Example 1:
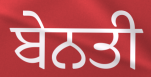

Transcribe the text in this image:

ਬੇਨਤੀ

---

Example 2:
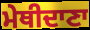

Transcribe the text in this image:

ਮੇਥੀਦਾਣਾ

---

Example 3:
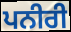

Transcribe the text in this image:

ਪਨੀਰੀ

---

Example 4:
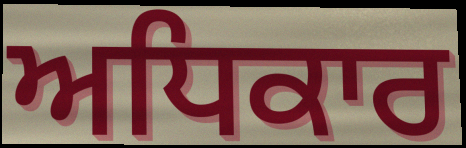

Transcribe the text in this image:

ਅਧਿਕਾਰ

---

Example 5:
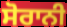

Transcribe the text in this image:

ਸੋਰਾਨੀ